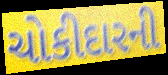
ચોકીદારની